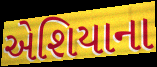
એશિયાના